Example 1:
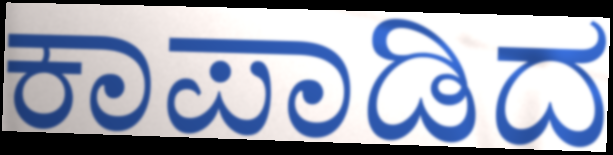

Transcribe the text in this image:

ಕಾಪಾಡಿದ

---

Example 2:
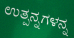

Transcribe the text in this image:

ಉತ್ಪನ್ನಗಳನ್ನ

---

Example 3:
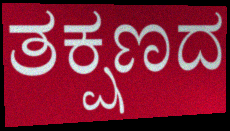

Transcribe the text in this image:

ತಕ್ಷಣದ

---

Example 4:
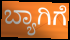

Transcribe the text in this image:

ಬ್ಯಾಗಿಗೆ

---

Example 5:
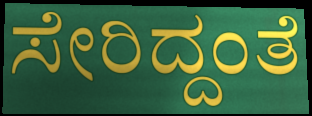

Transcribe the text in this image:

ಸೇರಿದ್ದಂತೆ